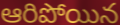
ఆరిపోయిన